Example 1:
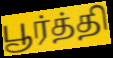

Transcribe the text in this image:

பூர்த்தி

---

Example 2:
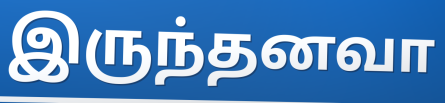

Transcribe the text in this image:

இருந்தனவா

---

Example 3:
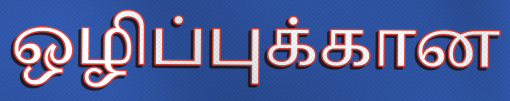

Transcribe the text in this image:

ஒழிப்புக்கான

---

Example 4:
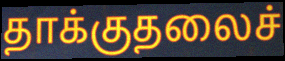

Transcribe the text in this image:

தாக்குதலைச்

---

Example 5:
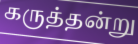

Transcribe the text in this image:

கருத்தன்று